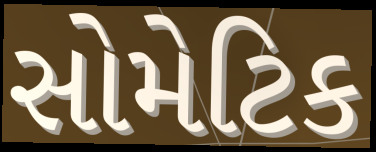
સોમેટિક